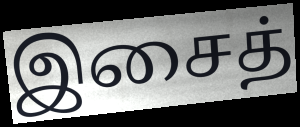
இசைத்